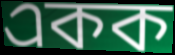
একক